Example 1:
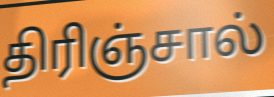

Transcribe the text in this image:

திரிஞ்சால்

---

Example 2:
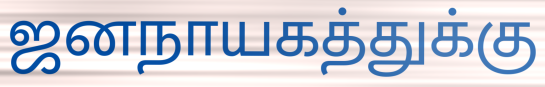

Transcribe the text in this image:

ஜனநாயகத்துக்கு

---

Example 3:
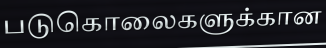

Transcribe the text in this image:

படுகொலைகளுக்கான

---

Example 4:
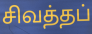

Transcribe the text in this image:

சிவத்தப்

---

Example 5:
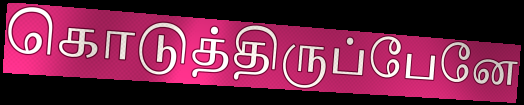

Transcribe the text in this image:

கொடுத்திருப்பேனே